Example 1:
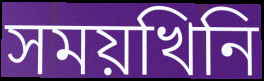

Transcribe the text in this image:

সময়খিনি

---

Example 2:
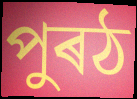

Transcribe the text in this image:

পুৰঠ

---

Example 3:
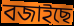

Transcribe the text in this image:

বজাইছে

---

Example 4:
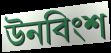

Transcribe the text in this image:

উনবিংশ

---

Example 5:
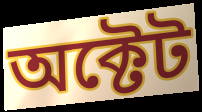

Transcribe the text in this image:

অক্টেট